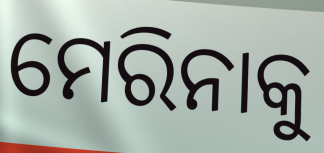
ମେରିନାକୁ